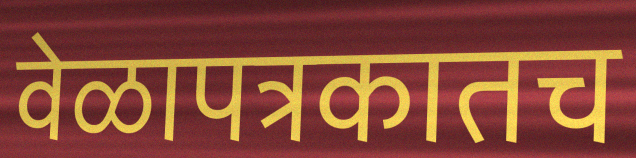
वेळापत्रकातच